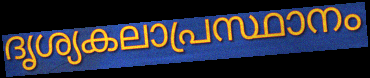
ദൃശ്യകലാപ്രസ്ഥാനം